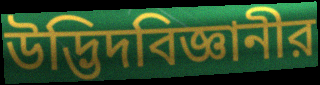
উদ্ভিদবিজ্ঞানীর